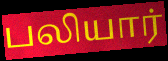
பலியார்